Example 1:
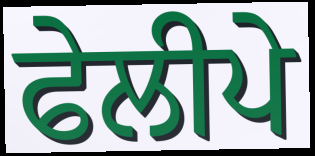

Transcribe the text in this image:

ਫੇਲੀਪੇ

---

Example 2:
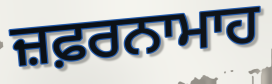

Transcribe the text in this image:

ਜ਼ਫ਼ਰਨਾਮਾਹ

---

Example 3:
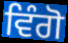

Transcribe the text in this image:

ਵਿੰਗੋ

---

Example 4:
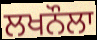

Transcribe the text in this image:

ਲਖਨੌਲਾ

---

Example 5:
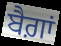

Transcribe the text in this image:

ਬੈਗ਼ਾਂ